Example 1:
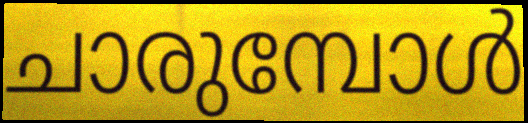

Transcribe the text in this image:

ചാരുമ്പോൾ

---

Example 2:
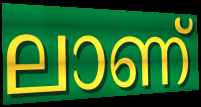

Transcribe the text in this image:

ലാണ്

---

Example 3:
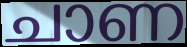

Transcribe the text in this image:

ചാണ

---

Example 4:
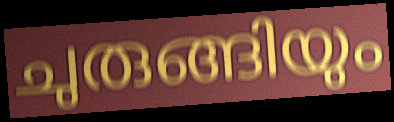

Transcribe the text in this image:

ചുരുങ്ങിയും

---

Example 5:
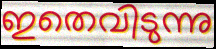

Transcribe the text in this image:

ഇതെവിടുന്നു